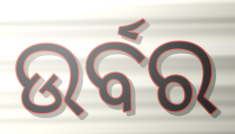
ଉର୍ବର